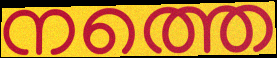
നത്തെ